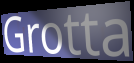
Grotta